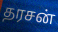
தரசன்